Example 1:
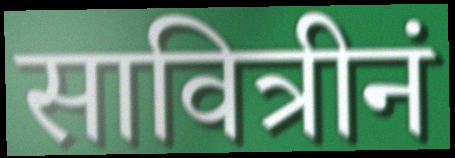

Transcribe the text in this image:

सावित्रीनं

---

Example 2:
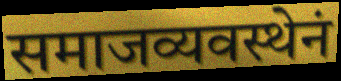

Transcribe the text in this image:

समाजव्यवस्थेनं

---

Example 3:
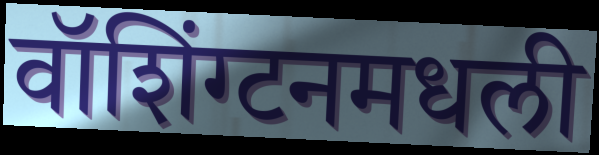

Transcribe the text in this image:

वॉशिंग्टनमधली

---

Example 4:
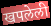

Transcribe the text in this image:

खपलेली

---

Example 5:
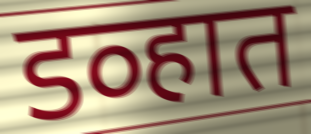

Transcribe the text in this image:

डव्हात